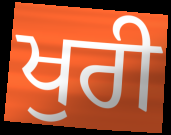
ਖੁਰੀ